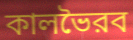
কালভৈরব